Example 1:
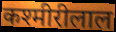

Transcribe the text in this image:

कश्मीरीलाल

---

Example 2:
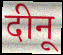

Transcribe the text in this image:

दीनू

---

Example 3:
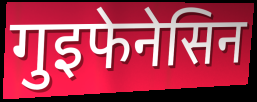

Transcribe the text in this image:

गुइफेनेसिन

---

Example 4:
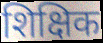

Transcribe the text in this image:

शिक्षिक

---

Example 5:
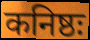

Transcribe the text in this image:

कनिष्ठः